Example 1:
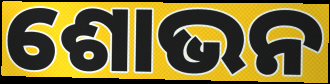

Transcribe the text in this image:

ଶୋଭନ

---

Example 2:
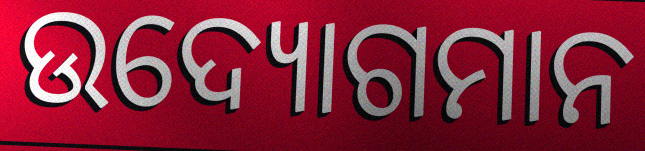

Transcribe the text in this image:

ଉଦ୍ୟୋଗମାନ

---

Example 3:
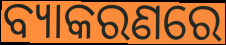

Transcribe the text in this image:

ବ୍ୟାକରଣରେ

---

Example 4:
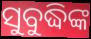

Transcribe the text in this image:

ସୁବୁଦ୍ଧିଙ୍କ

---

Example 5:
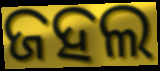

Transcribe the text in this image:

ଜହଲ